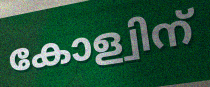
കോള്വിന്